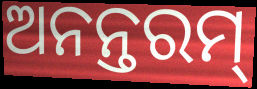
ଅନନ୍ତରମ୍